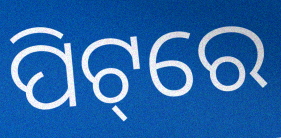
ପିଟ୍‌ରେ